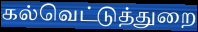
கல்வெட்டுத்துறை